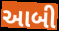
આબી